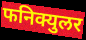
फनिक्युलर